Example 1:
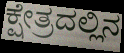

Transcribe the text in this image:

ಕ್ಷೇತ್ರದಲ್ಲಿನ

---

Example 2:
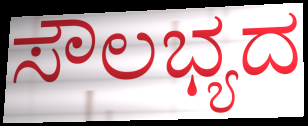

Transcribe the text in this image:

ಸೌಲಭ್ಯದ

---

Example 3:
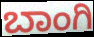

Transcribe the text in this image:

ಬಾಂಗಿ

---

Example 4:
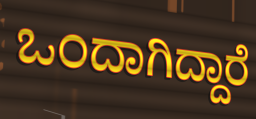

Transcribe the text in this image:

ಒಂದಾಗಿದ್ದಾರೆ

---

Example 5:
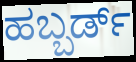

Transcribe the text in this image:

ಹಬ್ಬರ್ಡ್